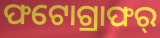
ଫଟୋଗ୍ରାଫର୍